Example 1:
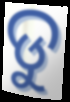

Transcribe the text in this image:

ଡୁ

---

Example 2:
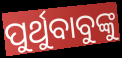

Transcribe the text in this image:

ପୁର୍ଥୁବାବୁଙ୍କୁ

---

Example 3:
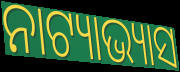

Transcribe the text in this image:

ନାଟ୍ୟାଭ୍ୟାସ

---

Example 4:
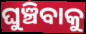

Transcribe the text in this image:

ଘୁଞ୍ଚିବାକୁ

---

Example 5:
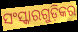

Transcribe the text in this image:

ସଂସ୍କାରଗୁଡ଼ିକର